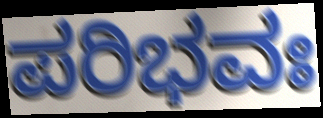
ಪರಿಭವಃ